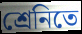
শ্রেনিতে